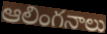
ఆలింగనాలు